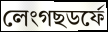
লেংগছডৰ্ফে